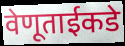
वेणूताईकडे